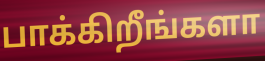
பாக்கிறீங்களா